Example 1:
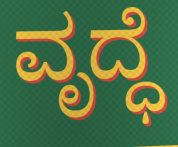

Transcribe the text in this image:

ವೃದ್ಧೆ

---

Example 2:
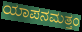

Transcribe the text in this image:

ಯಾಪನಮತ್ತಂ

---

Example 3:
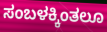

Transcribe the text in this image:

ಸಂಬಳಕ್ಕಿಂತಲೂ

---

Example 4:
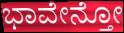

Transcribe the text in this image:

ಭಾವೇನ್ತೋ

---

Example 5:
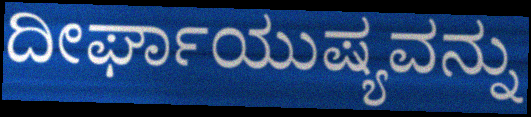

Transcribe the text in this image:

ದೀರ್ಘಾಯುಷ್ಯವನ್ನು